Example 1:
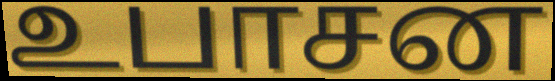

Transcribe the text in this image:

உபாசன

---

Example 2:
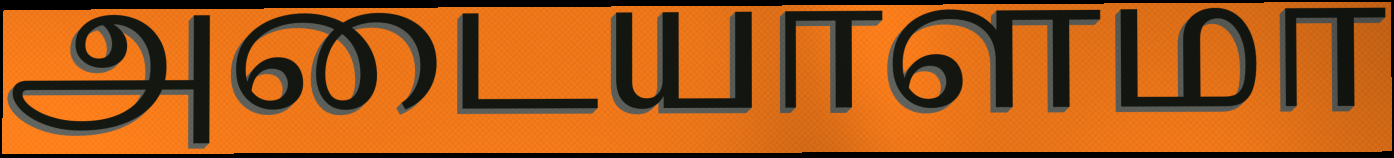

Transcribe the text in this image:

அடையாளமா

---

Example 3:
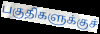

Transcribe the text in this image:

பகுதிகளுக்குச்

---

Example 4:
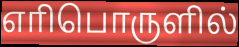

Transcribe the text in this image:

எரிபொருளில்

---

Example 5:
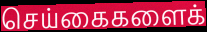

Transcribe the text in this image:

செய்கைகளைக்